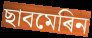
ছাবমেৰিন